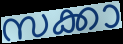
സക്കാ